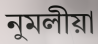
নুমলীয়া